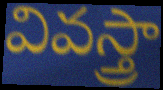
వివస్త్రా